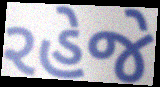
રહેજે